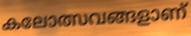
കലോത്സവങ്ങളാണ്